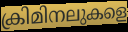
ക്രിമിനലുകളെ